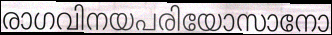
രാഗവിനയപരിയോസാനോ